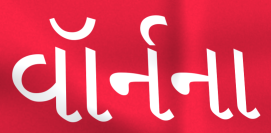
વૉર્નના